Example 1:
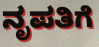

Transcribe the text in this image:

ನೃಪತಿಗೆ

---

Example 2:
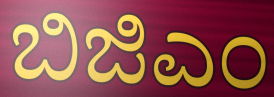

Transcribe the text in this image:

ಬಿಜಿಎಂ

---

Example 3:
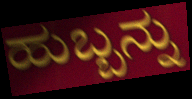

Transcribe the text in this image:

ಹುಬ್ಬನ್ನು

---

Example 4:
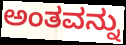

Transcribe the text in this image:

ಅಂತವನ್ನು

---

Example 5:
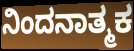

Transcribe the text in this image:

ನಿಂದನಾತ್ಮಕ